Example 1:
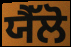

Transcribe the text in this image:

ਯੈੱਲੋ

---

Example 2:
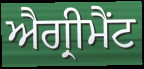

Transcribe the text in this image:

ਐਗ੍ਰੀਮੈਂਟ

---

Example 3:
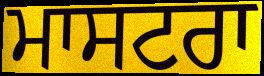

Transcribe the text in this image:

ਮਾਸਟਰਾ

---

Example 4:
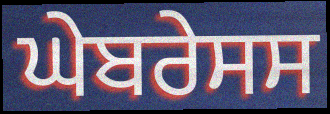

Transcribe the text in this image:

ਘੇਬਰੇਸਸ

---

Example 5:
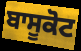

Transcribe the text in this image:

ਬਾਸੂਕੋਟ